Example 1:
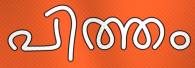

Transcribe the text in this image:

പിത്തം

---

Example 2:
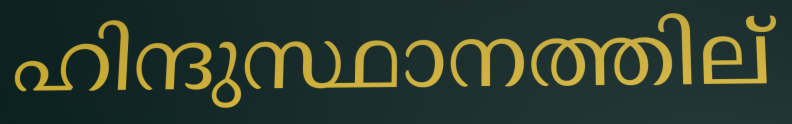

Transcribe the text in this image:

ഹിന്ദുസ്ഥാനത്തില്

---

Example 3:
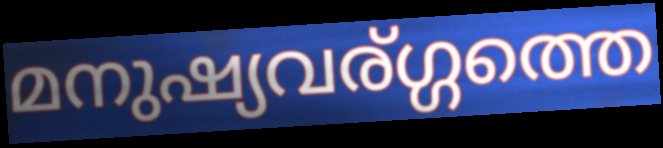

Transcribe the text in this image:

മനുഷ്യവര്ഗ്ഗത്തെ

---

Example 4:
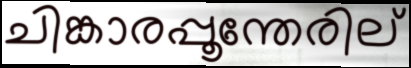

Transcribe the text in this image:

ചിങ്കാരപ്പൂന്തേരില്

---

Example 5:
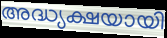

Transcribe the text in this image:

അദ്ധ്യക്ഷയായി